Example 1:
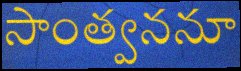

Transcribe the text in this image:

సాంత్వననూ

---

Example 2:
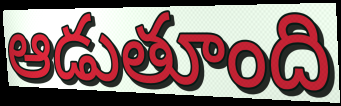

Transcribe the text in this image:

ఆడుతూంది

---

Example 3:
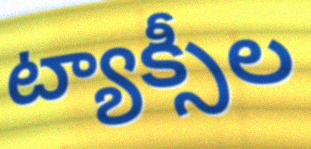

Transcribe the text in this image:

ట్యాక్సీల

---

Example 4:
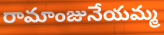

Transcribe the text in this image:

రామాంజునేయమ్మ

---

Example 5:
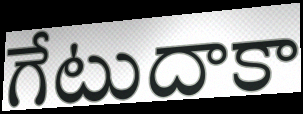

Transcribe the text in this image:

గేటుదాకా